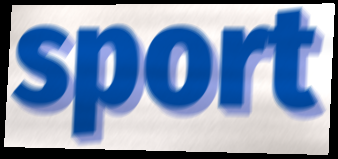
sport